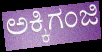
ಅಕ್ಕಿಗಂಜಿ